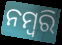
ନମ୍ବରି